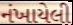
નંખાયેલી